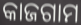
କାଜଗାମ